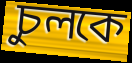
চুলকে